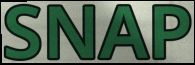
SNAP